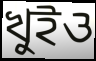
খুইও